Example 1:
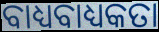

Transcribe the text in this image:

ବାଧ୍ୟବାଧ୍ୟକତା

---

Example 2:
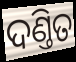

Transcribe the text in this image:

ଦଣ୍ତିତ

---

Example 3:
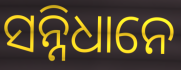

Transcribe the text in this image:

ସନ୍ନିଧାନେ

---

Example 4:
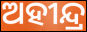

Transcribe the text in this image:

ଅହୀନ୍ଦ୍ର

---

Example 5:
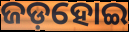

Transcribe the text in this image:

ଜଡ଼ହୋଇ